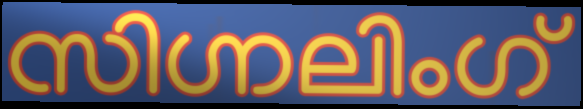
സിഗ്നലിംഗ്